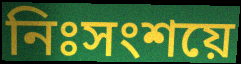
নিঃসংশয়ে